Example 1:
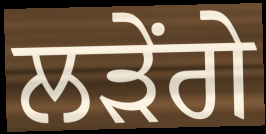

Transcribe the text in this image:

ਲੜੇਂਗੇ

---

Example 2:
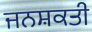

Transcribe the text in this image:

ਜਨਸ਼ਕਤੀ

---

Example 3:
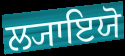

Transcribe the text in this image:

ਲ੍ਯਾਇਯੋ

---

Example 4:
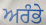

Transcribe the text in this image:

ਅਰੰਭੇ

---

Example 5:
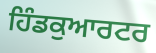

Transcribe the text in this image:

ਹਿੰਡਕੁਆਰਟਰ